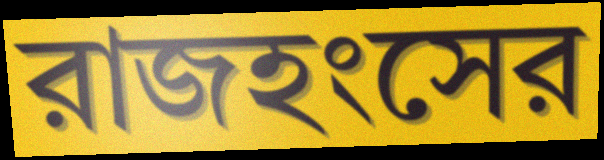
রাজহংসের